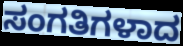
ಸಂಗತಿಗಳಾದ